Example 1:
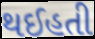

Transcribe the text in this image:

થઈહતી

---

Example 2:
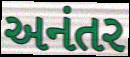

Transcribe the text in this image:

અનંતર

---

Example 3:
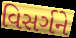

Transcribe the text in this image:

વિસર્ગને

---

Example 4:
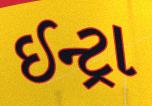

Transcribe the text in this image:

ઈન્ટ્રા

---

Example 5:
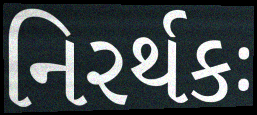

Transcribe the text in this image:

નિરર્થકઃ